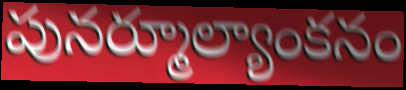
పునర్మూల్యాంకనం